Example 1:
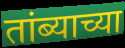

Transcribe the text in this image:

तांब्याच्या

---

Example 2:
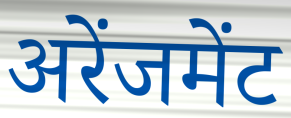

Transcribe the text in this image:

अरेंजमेंट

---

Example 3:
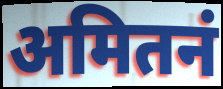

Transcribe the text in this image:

अमितनं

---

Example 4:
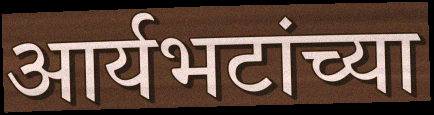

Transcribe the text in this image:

आर्यभटांच्या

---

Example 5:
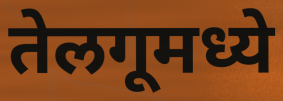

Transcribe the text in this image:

तेलगूमध्ये